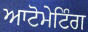
ਆਟੋਮੇਟਿੰਗ